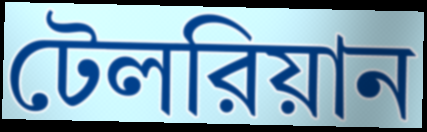
টেলরিয়ান